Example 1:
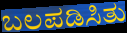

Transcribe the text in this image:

ಬಲಪಡಿಸಿತು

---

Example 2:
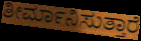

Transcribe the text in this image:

ತೀರ್ಮಾನಿಸುತ್ತಾರೆ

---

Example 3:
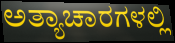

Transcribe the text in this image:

ಅತ್ಯಾಚಾರಗಳಲ್ಲಿ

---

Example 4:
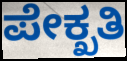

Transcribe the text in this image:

ಪೇಕ್ಖತಿ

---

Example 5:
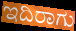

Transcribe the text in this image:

ಇದಿರಾಗು